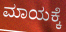
ಮಾಯಕ್ಕೆ